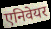
एनिवेयर